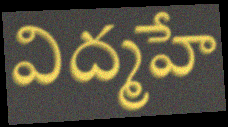
విద్మహే